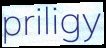
priligy